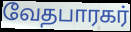
வேதபாரகர்